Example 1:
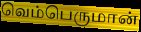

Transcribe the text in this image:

வெம்பெருமான்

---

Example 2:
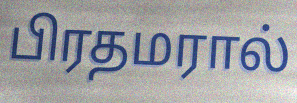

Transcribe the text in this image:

பிரதமரால்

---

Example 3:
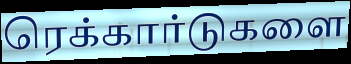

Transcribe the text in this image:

ரெக்கார்டுகளை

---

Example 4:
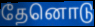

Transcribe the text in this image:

தேனொடு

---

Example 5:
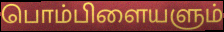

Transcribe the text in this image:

பொம்பிளையளும்